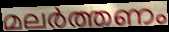
മലർത്തണം